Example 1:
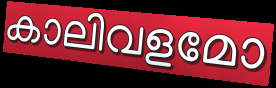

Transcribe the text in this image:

കാലിവളമോ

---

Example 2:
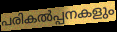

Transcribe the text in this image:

പരികൽപ്പനകളും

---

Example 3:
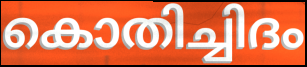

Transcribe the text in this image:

കൊതിച്ചിദം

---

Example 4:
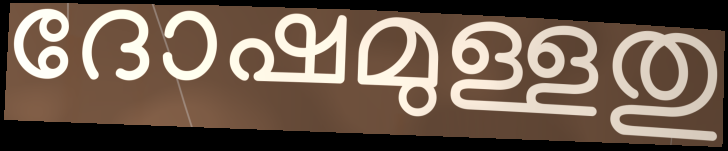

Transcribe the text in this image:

ദോഷമുള്ളതു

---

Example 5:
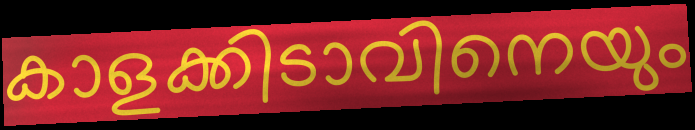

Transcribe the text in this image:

കാളക്കിടാവിനെയും